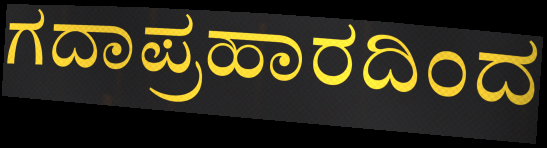
ಗದಾಪ್ರಹಾರದಿಂದ